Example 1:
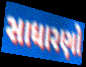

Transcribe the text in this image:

સાધારણો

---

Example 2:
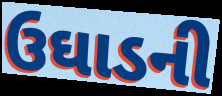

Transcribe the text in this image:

ઉઘાડની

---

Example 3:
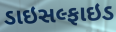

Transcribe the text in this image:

ડાઇસલ્ફાઇડ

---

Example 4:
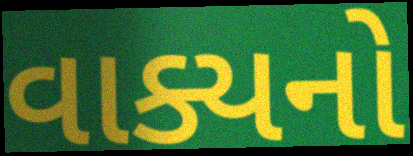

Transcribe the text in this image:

વાક્યનો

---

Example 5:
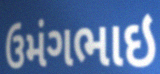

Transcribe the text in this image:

ઉમંગભાઇ